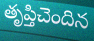
తృప్తిచెందిన